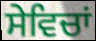
ਸੇਵਿਚਾਂ